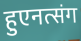
हुएनत्संग